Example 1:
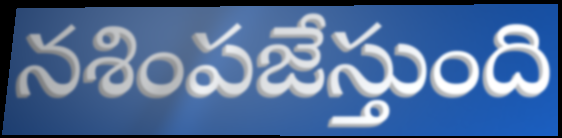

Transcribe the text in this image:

నశింపజేస్తుంది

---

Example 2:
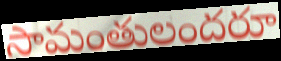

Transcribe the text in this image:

సామంతులందరూ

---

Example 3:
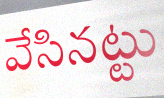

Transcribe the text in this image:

వేసినట్టు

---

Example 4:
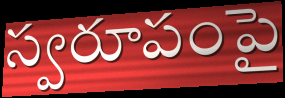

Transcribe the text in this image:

స్వరూపంపై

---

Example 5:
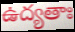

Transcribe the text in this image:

ఉద్యతాః